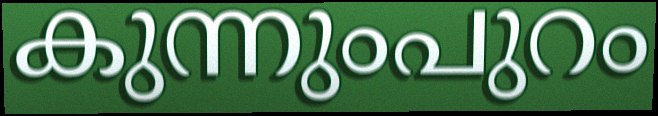
കുന്നുംപുറം